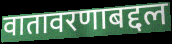
वातावरणाबद्दल